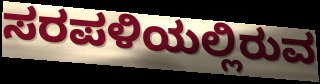
ಸರಪಳಿಯಲ್ಲಿರುವ